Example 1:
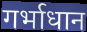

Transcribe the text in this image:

गर्भाधान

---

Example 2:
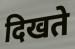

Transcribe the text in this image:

दिखते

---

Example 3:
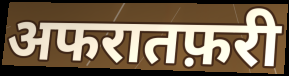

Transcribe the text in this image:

अफरातफ़री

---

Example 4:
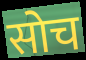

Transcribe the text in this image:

सोच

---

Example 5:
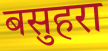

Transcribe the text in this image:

बसुहरा